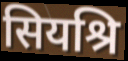
सियश्रि